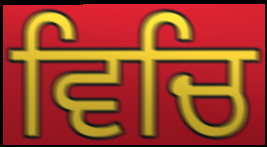
ਵਿਚਿ